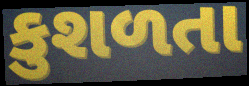
કુશળતા